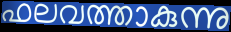
ഫലവത്താകുന്നു